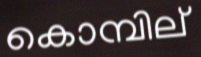
കൊമ്പില്